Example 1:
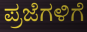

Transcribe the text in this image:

ಪ್ರಜೆಗಳಿಗೆ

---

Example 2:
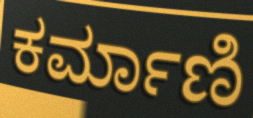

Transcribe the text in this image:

ಕರ್ಮಾಣಿ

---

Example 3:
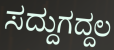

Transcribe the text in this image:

ಸದ್ದುಗದ್ದಲ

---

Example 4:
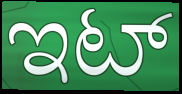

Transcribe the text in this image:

ಇಟ್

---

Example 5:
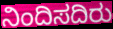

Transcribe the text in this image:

ನಿಂದಿಸದಿರು